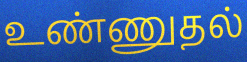
உண்ணுதல்